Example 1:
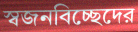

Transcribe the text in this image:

স্বজনবিচ্ছেদের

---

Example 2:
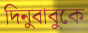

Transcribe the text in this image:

দিনুবাবুকে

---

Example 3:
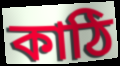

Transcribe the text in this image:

কাঠি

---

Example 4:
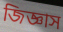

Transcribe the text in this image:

জিজ্ঞাস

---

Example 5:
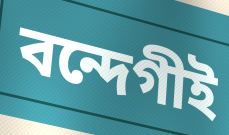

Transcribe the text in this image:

বন্দেগীই